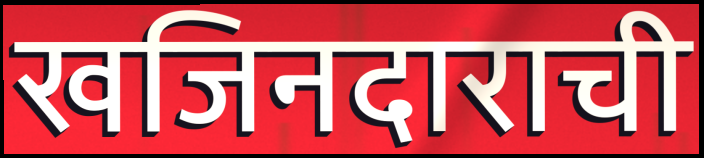
खजिनदाराची